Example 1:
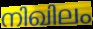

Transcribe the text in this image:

നിഖിലം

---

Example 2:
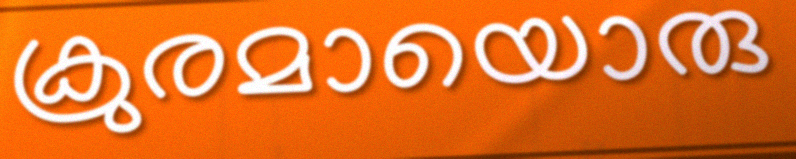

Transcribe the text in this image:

ക്രുരമായൊരു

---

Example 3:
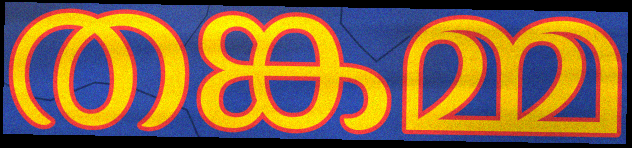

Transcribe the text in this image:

തങ്കമ്മ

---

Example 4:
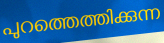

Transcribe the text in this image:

പുറത്തെത്തിക്കുന്ന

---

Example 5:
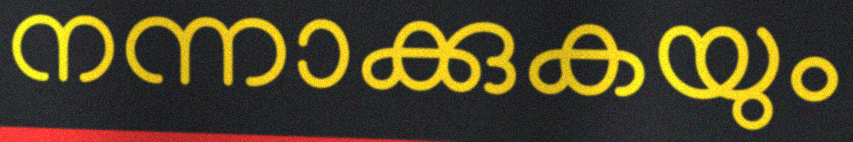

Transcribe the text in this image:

നന്നാക്കുകയും